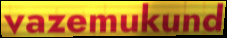
vazemukund